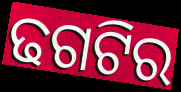
ଢଗଟିର